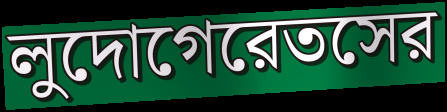
লুদোগেরেতসের